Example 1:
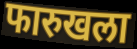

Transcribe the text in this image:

फारुखला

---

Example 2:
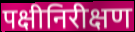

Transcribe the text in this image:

पक्षीनिरीक्षण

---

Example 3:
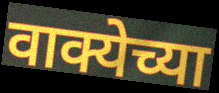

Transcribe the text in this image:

वाक्येच्या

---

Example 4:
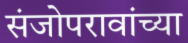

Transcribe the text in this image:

संजोपरावांच्या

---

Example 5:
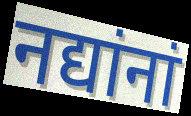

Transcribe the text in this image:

नद्यांनां